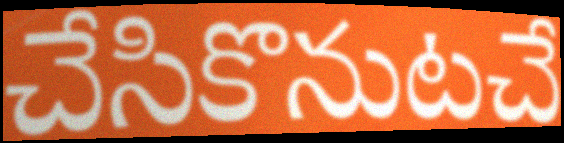
చేసికొనుటచే